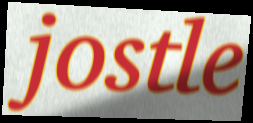
jostle